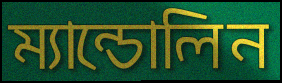
ম্যান্ডোলিন